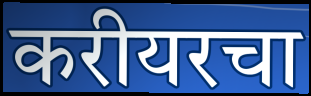
करीयरचा